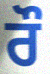
ਰੌ